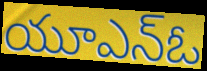
యూఎన్ఓ